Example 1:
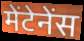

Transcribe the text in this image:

मेंटेनेंस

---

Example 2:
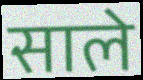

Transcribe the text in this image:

साले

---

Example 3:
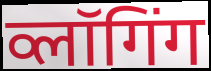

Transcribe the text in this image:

व्लॉगिंग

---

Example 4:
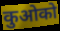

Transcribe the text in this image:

कुओको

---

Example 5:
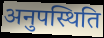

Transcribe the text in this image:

अनुपस्थिति